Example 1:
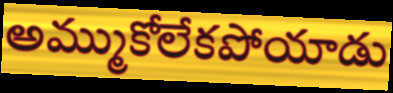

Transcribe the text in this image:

అమ్ముకోలేకపోయాడు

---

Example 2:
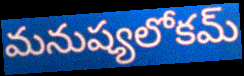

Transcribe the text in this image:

మనుష్యలోకమ్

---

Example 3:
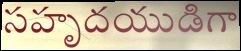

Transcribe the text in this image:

సహృదయుడిగా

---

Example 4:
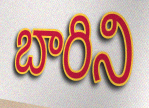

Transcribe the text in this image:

బారిని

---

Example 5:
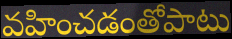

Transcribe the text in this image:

వహించడంతోపాటు